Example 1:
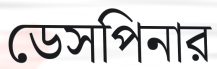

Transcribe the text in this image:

ডেসপিনার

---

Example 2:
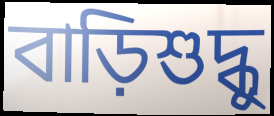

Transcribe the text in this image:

বাড়িশুদ্ধু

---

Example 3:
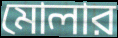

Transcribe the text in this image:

মোলার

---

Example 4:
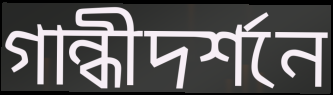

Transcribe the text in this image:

গান্ধীদর্শনে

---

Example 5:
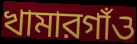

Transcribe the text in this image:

খামারগাঁও